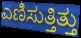
ಎಣಿಸುತ್ತಿತ್ತು